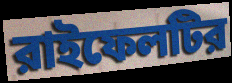
রাইফেলটির